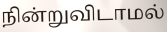
நின்றுவிடாமல்